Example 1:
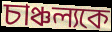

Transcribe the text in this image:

চাঞ্চল্যকে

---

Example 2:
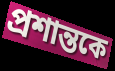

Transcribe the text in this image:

প্রশান্তকে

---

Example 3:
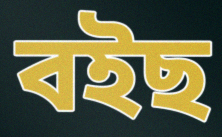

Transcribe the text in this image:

বইছ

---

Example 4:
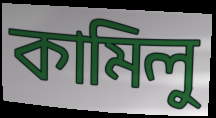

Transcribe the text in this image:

কামিলু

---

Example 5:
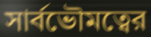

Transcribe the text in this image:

সার্বভৌমত্বের